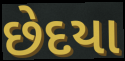
છેદયા